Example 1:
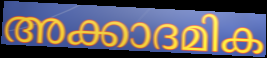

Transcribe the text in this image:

അക്കാദമിക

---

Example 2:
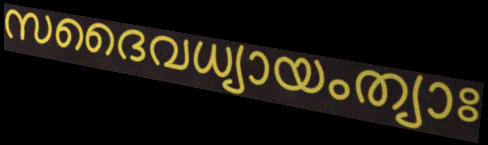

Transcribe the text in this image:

സദൈവധ്യായംത്യാഃ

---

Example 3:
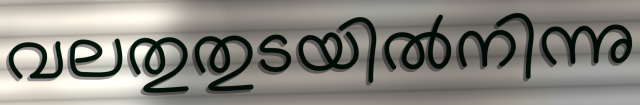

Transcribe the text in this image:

വലതുതുടയിൽനിന്നു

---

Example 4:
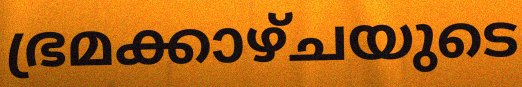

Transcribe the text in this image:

ഭ്രമക്കാഴ്ചയുടെ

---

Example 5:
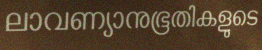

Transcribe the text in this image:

ലാവണ്യാനുഭൂതികളുടെ